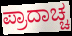
ಪ್ರಾದಾಚ್ಚ